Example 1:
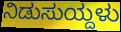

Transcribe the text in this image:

ನಿಡುಸುಯ್ದಳು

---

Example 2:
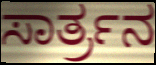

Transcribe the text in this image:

ಸಾರ್ತ್ರನ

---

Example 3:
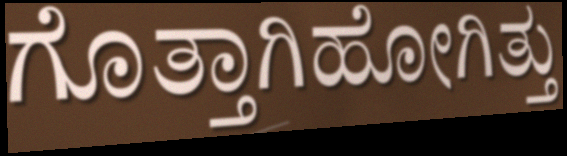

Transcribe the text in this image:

ಗೊತ್ತಾಗಿಹೋಗಿತ್ತು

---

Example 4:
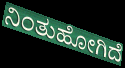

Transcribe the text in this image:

ನಿಂತುಹೋಗಿದೆ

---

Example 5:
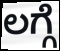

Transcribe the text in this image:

ಲಗ್ಗೆ